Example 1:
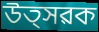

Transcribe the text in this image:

উত্সৱক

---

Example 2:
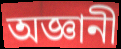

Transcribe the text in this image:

অজ্ঞানী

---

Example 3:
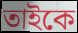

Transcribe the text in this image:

তাইকে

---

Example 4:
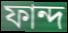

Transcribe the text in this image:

ফান্দ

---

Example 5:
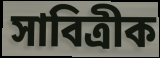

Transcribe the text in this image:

সাবিত্ৰীক